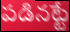
పడినట్టే